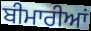
ਬੀਮਾਰੀਆਂ